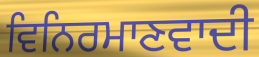
ਵਿਨਿਰਮਾਣਵਾਦੀ